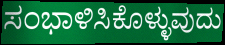
ಸಂಭಾಳಿಸಿಕೊಳ್ಳುವುದು